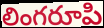
లింగరూపి